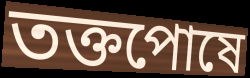
তক্তপোষে